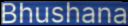
Bhushana